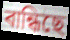
বান্ধিছে